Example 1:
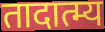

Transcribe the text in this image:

तादात्म्य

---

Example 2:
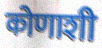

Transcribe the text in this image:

कोणाशी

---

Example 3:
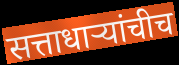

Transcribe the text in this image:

सत्ताधाऱ्यांचीच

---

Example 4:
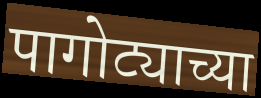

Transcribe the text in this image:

पागोट्याच्या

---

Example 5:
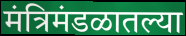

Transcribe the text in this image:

मंत्रिमंडळातल्या